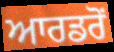
ਆਰਡਰੋਂ